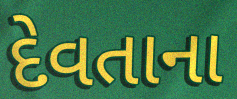
દેવતાના